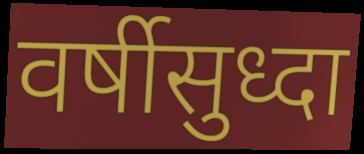
वर्षीसुध्दा